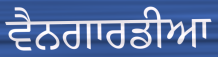
ਵੈਨਗਾਰਡੀਆ